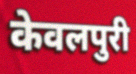
केवलपुरी